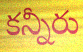
కన్నీరు